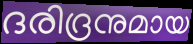
ദരിദ്രനുമായ